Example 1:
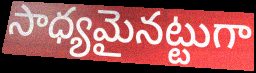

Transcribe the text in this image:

సాధ్యమైనట్టుగా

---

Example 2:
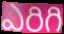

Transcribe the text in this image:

ఎరిగి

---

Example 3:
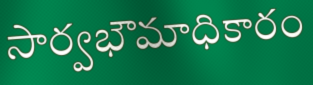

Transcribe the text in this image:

సార్వభౌమాధికారం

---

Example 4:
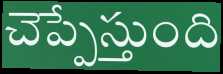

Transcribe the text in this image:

చెప్పేస్తుంది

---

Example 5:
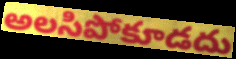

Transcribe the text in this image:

అలసిపోకూడదు